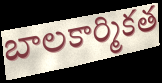
బాలకార్మికత